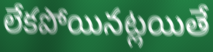
లేకపోయినట్లయితే